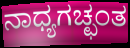
ನಾಧ್ಯಗಚ್ಛಂತ